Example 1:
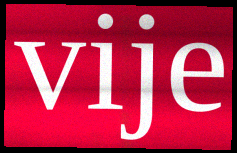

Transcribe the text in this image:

vije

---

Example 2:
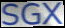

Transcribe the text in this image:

SGX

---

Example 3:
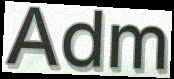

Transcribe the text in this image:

Adm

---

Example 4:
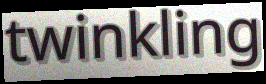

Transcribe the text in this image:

twinkling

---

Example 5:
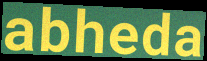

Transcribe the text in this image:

abheda